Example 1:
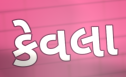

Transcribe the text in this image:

કેવલા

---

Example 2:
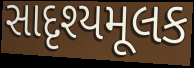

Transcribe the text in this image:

સાદૃશ્યમૂલક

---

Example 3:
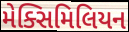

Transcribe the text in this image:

મેક્સિમિલિયન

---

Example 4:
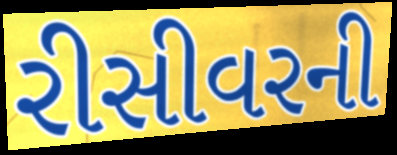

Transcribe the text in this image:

રીસીવરની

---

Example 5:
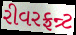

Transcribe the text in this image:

રીવરફ્રન્ર્ટ